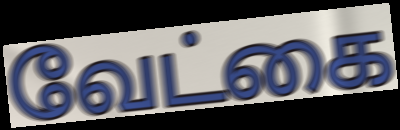
வேட்கை